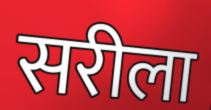
सरीला